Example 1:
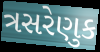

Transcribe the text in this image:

ત્રસરેણુક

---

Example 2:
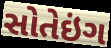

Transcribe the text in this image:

સોતેઇંગ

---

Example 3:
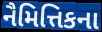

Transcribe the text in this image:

નૈમિત્તિકના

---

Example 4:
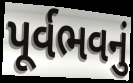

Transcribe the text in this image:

પૂર્વભવનું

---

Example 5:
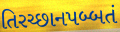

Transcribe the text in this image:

તિરચ્છાનપબ્બતં